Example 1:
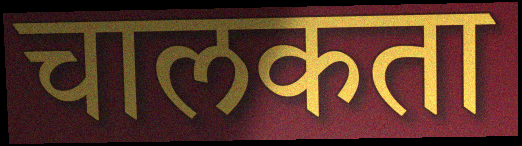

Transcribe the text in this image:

चालकता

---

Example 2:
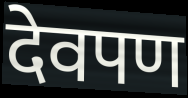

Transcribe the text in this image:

देवपण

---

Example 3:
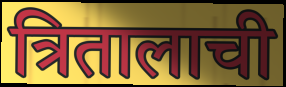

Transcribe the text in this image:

त्रितालाची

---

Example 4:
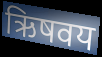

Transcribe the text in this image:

ऋिषवय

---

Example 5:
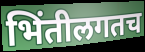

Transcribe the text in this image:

भिंतीलगतच